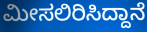
ಮೀಸಲಿರಿಸಿದ್ದಾನೆ